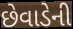
છેવાડેની